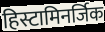
हिस्टामिनर्जिक